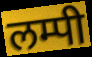
लम्पी